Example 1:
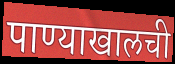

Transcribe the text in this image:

पाण्याखालची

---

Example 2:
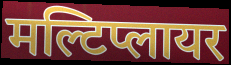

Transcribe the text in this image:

मल्टिप्लायर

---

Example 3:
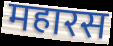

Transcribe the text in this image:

महारस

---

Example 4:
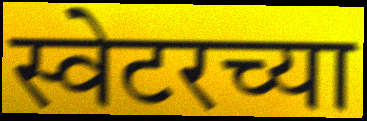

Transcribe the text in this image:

स्वेटरच्या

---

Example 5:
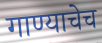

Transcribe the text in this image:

गाण्याचेच